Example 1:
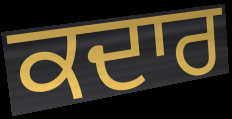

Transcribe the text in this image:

ਕਦਾਰ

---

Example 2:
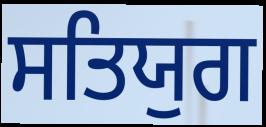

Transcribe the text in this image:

ਸਤਿਯੁਗ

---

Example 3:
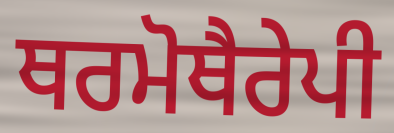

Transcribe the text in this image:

ਥਰਮੋਥੈਰੇਪੀ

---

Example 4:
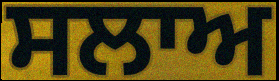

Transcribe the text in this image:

ਸਲਾਅ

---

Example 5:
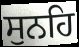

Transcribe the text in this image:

ਸੁਨਹਿ